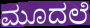
ಮೂದಲೆ